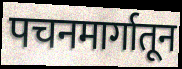
पचनमार्गातून